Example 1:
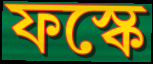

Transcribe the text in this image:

ফস্কে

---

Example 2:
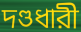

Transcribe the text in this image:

দণ্ডধারী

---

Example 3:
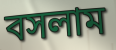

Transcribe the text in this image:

বসলাম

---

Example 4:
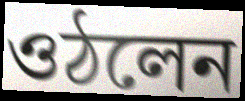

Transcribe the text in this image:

ওঠলেন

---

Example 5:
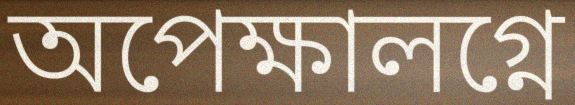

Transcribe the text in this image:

অপেক্ষালগ্নে